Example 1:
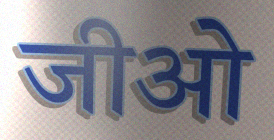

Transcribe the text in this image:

जीओ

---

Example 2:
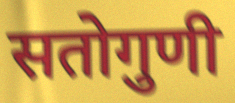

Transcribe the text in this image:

सतोगुणी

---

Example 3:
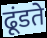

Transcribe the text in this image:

ढूंडते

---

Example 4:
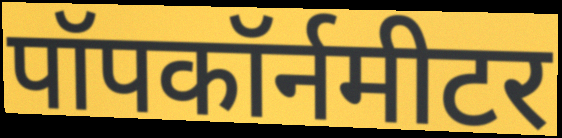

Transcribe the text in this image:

पॉपकॉर्नमीटर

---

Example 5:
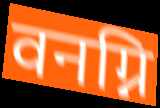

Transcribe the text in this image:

वनग्नि